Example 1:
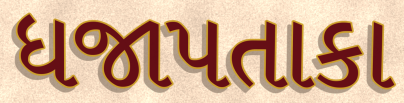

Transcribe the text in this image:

ધજાપતાકા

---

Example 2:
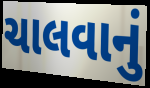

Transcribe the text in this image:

ચાલવાનું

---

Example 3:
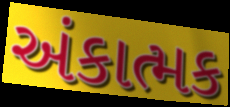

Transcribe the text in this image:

અંકાત્મક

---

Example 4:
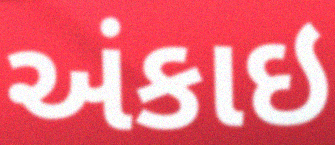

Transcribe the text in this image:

અંકાઇ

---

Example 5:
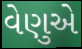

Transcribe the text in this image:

વેણુએ